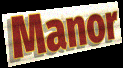
Manor